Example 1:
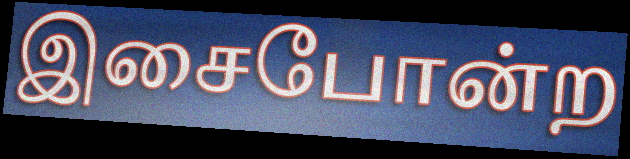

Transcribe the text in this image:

இசைபோன்ற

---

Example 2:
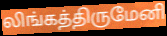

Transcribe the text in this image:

லிங்கத்திருமேனி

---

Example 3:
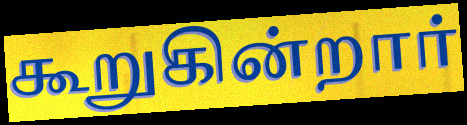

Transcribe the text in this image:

கூறுகின்றார்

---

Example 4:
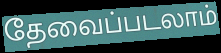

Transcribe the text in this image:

தேவைப்படலாம்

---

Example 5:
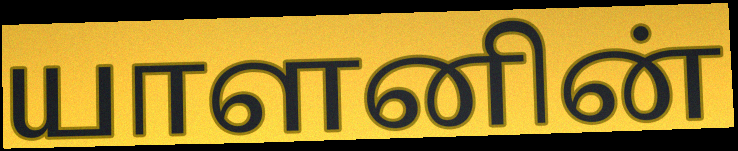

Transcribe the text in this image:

யாளனின்